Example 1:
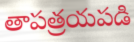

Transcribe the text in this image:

తాపత్రయపడి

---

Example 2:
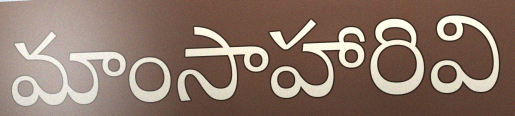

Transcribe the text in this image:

మాంసాహారివి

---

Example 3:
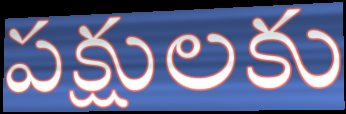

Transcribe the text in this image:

పక్షులకు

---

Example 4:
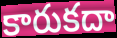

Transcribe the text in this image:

కారుకదా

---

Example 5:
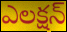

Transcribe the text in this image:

ఎలక్షన్